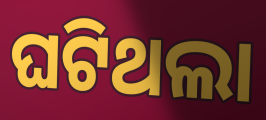
ଘଟିଥଲା